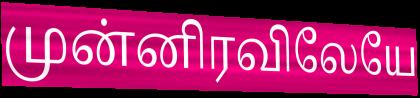
முன்னிரவிலேயே